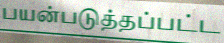
பயன்படுத்தப்பட்ட